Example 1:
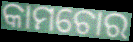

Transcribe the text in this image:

କାମଚୋର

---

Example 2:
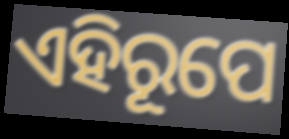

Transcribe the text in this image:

ଏହିରୂପେ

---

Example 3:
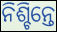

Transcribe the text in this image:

ନିଶ୍ଚିନ୍ତେ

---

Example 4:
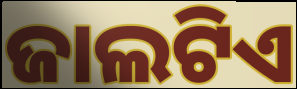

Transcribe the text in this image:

ଜାଲଟିଏ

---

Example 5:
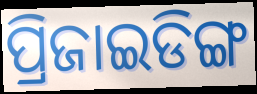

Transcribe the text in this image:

ପ୍ରିଜାଇଡିଙ୍ଗ